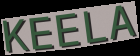
KEELA